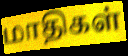
மாதிகள்